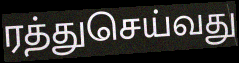
ரத்துசெய்வது